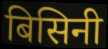
बिसिनी